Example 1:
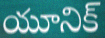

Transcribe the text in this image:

యూనిక్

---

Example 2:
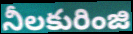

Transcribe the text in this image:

నీలకురింజి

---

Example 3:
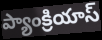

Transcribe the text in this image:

ప్యాంక్రియాస్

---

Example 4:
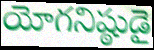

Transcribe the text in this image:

యోగనిష్ఠుడై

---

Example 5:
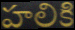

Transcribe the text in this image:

హలికి